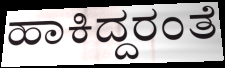
ಹಾಕಿದ್ದರಂತೆ